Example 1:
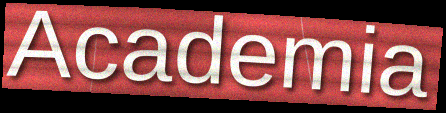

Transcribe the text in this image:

Academia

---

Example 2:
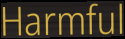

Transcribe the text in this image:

Harmful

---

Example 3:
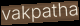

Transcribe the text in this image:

vakpatha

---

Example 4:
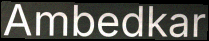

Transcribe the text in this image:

Ambedkar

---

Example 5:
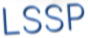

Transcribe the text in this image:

LSSP